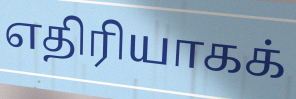
எதிரியாகக்